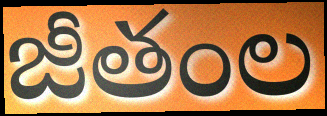
జీతంల